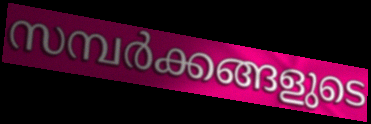
സമ്പർക്കങ്ങളുടെ